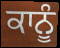
ਕਾਨੂੰ